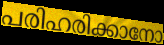
പരിഹരിക്കാനോ